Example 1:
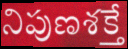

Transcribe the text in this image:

నిపుణశక్తే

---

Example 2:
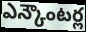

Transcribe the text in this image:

ఎన్కౌంటర్ల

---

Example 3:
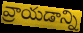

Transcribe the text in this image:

వ్రాయడాన్ని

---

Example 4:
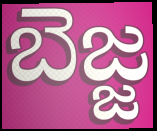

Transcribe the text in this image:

బెజ్జ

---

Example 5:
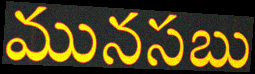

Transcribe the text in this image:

మునసబు